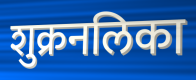
शुक्रनलिका